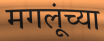
मगलूंच्या